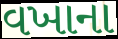
વખાના